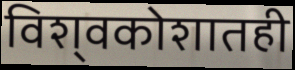
विश्वकोशातही